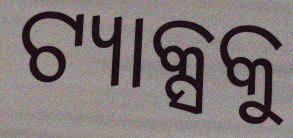
ଟ୍ୟାକ୍ସକୁ